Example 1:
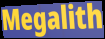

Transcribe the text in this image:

Megalith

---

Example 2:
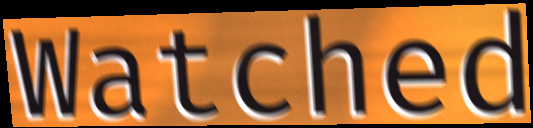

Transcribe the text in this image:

Watched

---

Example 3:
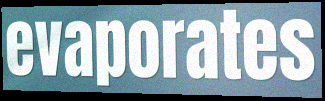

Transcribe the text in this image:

evaporates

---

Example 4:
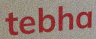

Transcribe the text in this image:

tebha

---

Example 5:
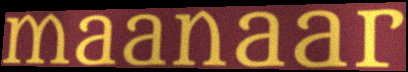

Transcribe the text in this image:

maanaar